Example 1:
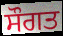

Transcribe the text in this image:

ਸੌਗਤ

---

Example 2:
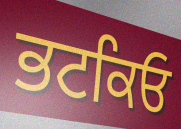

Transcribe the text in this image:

ਭਟਕਿਓ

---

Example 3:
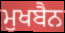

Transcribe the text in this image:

ਮੁਖਬੈਨ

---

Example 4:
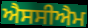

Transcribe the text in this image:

ਐਸਸੀਐਮ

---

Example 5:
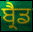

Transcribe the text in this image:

ਬ੍ਰੈਡ